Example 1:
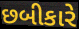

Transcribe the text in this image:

છબીકારે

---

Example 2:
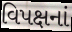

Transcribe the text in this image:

વિપક્ષનાં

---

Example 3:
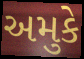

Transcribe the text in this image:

અમુકે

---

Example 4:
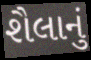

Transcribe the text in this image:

શૈલાનું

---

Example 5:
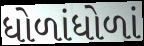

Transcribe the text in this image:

ધોળાંધોળાં